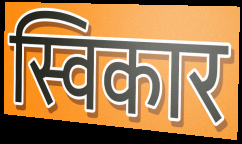
स्विकार